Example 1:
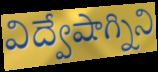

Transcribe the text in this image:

విద్వేషాగ్నిని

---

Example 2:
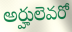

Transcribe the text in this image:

అర్హులెవరో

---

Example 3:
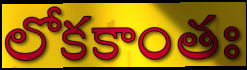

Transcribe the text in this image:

లోకకాంతః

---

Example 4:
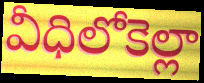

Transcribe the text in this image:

వీధిలోకెల్లా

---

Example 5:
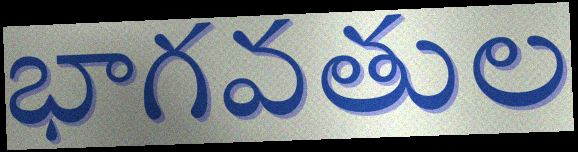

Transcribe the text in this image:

భాగవతుల